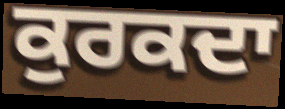
ਕੁਰਕਦਾ